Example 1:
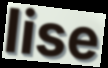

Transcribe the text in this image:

lise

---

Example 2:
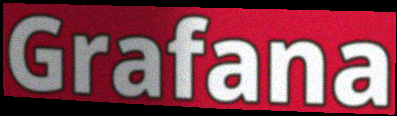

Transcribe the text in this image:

Grafana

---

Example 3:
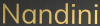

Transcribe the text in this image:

Nandini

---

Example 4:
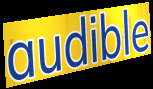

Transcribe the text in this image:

audible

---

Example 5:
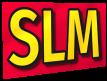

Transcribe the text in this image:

SLM